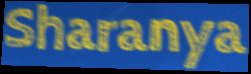
Sharanya